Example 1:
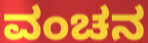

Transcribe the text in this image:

ವಂಚನ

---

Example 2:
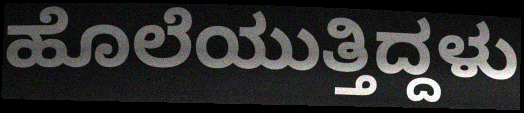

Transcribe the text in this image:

ಹೊಲೆಯುತ್ತಿದ್ದಳು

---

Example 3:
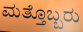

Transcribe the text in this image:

ಮತ್ತೊಬ್ಬರು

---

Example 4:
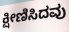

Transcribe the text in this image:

ಕ್ಷೀಣಿಸಿದವು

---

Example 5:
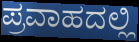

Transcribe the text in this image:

ಪ್ರವಾಹದಲ್ಲಿ